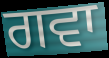
ਗਵਾ